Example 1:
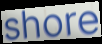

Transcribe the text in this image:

shore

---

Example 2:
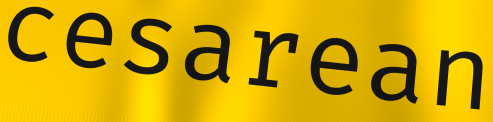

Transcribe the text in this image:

cesarean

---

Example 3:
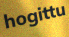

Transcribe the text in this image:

hogittu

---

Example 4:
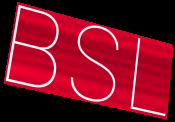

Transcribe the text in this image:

BSL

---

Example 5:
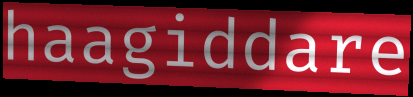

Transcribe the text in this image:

haagiddare